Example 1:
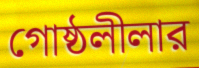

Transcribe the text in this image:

গোষ্ঠলীলার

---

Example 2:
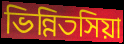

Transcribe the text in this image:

ভিন্নিতসিয়া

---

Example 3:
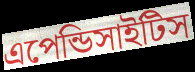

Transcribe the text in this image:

এপেন্ডিসাইটিস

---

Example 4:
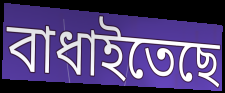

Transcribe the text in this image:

বাধাইতেছে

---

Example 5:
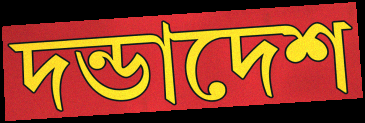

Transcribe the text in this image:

দন্ডাদেশ